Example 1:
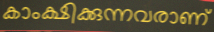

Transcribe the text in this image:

കാംക്ഷിക്കുന്നവരാണ്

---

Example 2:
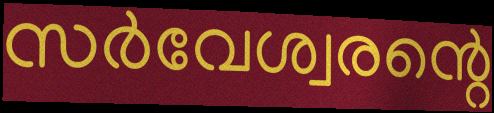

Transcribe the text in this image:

സർവേശ്വരന്റെ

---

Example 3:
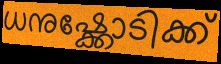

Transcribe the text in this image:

ധനുഷ്ക്കോടിക്ക്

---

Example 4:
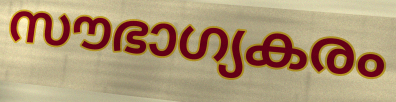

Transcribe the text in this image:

സൗഭാഗ്യകരം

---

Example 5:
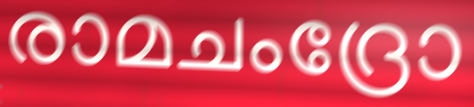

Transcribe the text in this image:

രാമചംദ്രോ